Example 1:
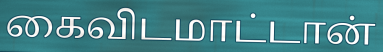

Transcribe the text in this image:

கைவிடமாட்டான்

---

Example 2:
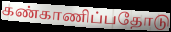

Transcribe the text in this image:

கண்காணிப்பதோடு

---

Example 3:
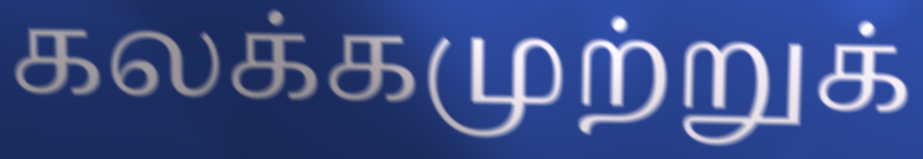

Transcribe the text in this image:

கலக்கமுற்றுக்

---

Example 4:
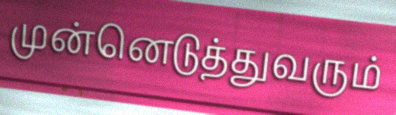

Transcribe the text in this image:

முன்னெடுத்துவரும்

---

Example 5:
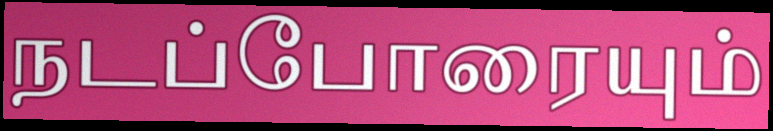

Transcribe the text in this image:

நடப்போரையும்